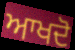
ਆਖਦੋ